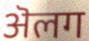
ऄलग